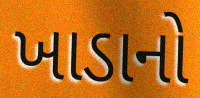
ખાડાનો